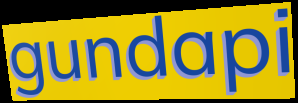
gundapi